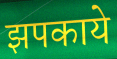
झपकाये